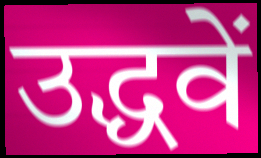
उद्धवें